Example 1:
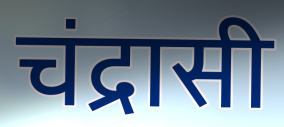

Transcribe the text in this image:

चंद्रासी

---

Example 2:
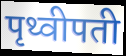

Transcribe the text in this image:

पृथ्वीपती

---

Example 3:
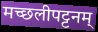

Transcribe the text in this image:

मच्छलीपट्टनम्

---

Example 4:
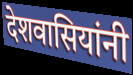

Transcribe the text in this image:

देशवासियांनी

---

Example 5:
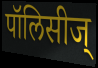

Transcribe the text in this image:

पॉलिसीज्